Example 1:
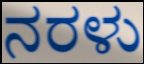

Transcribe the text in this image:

ನರಳು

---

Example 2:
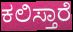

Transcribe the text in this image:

ಕಲಿಸ್ತಾರೆ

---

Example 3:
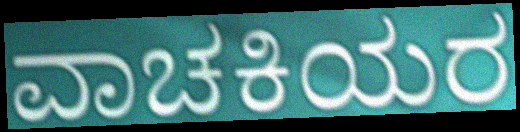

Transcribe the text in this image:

ವಾಚಕಿಯರ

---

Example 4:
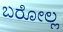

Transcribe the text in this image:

ಬರೋಲ್ಲ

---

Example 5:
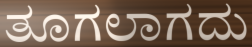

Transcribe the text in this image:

ತೂಗಲಾಗದು